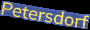
Petersdorf